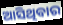
ଆସିଥିବାର